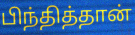
பிந்தித்தான்